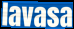
lavasa